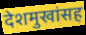
देशमुखांसह